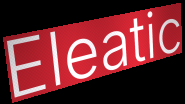
Eleatic